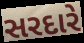
સરદારે